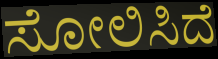
ಸೋಲಿಸಿದೆ